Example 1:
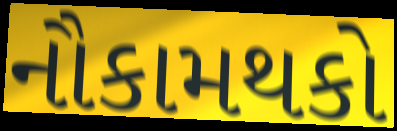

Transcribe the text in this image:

નૌકામથકો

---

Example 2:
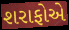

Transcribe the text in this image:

શરાફોએ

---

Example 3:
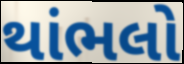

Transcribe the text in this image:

થાંભલો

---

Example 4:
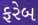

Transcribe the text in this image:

ફરેબ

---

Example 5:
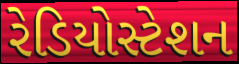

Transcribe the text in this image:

રેડિયોસ્ટેશન